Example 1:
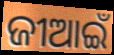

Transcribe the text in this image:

ଜୀଆଇଁ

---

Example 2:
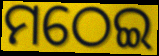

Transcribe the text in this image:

ମଠେଇ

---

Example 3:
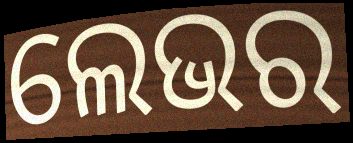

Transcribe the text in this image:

ଲେଭର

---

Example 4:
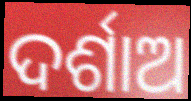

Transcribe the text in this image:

ଦର୍ଶାଅ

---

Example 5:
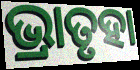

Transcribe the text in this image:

ଭ୍ରାତୃହା